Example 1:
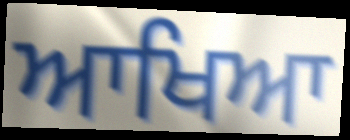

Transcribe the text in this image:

ਆਖਿਆ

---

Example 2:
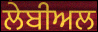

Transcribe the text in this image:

ਲੇਬੀਅਲ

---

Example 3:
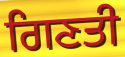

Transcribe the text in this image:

ਗਿਣਤੀ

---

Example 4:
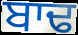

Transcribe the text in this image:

ਬਾਢ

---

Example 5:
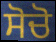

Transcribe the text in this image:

ਸੋਚੋ